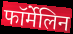
फॉर्मेलिन